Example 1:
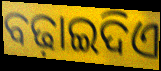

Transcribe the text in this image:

ବଢ଼ାଇଦିଏ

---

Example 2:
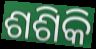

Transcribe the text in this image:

ଶଶିକି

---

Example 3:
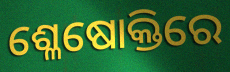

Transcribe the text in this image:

ଶ୍ଳେଷୋକ୍ତିରେ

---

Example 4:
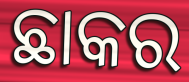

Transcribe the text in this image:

ଛାକର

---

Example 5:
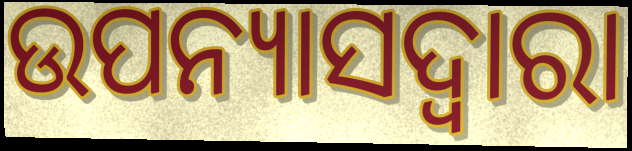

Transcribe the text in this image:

ଉପନ୍ୟାସଦ୍ୱାରା